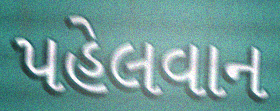
પહેલવાન